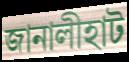
জানালীহাট